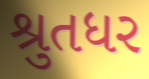
શ્રુતધર